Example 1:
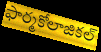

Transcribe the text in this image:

ఫార్మకోలాజికల్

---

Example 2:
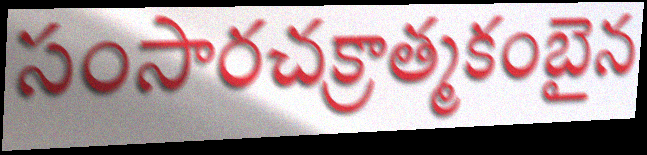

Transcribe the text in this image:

సంసారచక్రాత్మకంబైన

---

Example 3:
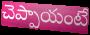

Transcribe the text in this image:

చెప్పాయంటే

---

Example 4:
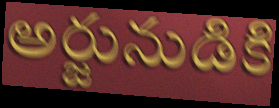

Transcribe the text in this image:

అర్జునుడికి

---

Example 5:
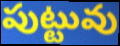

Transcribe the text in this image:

పుట్టువు